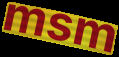
msm